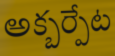
అక్బర్పేట